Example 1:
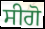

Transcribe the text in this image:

ਸੀਗੋ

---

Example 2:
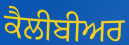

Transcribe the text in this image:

ਕੈਲੀਬੀਅਰ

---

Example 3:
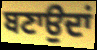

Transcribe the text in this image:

ਬਣਾਉਦਾਂ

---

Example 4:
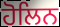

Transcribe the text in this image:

ਹੋਲਿਨ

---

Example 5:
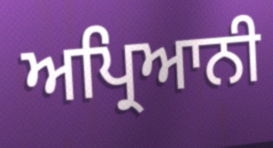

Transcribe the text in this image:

ਅਪ੍ਰਿਆਨੀ